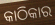
କାଠିକାର